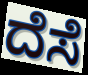
ದೆಸೆ